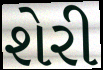
શેરી